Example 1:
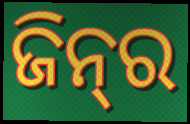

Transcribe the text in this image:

ଜିନ୍‍ର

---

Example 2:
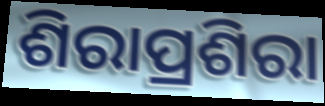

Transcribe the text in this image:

ଶିରାପ୍ରଶିରା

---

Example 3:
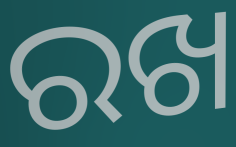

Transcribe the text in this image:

ରଖ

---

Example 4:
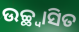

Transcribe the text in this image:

ଉଚ୍ଛ୍ୱାସିତ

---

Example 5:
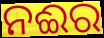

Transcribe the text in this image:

ନଈର